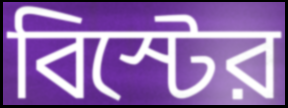
বিস্টের